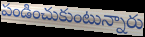
పండించుకుంటున్నారు